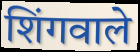
शिंगवाले